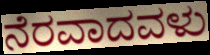
ನೆರವಾದವಳು